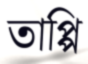
তাপ্পি